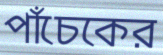
পাঁচেকের